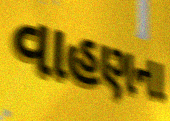
વાહણના